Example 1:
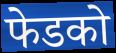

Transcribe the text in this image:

फेडको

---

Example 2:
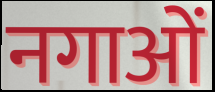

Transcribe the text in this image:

नगाओं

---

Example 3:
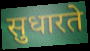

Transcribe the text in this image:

सुधारते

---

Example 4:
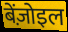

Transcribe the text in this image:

बेंज़ोइल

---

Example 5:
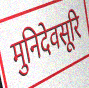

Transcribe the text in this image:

मुनिदेवसूरि